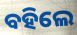
ବହିଲେ